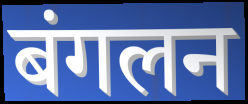
बंगलन